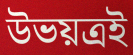
উভয়ত্রই